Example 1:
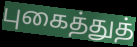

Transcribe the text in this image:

புகைத்துத்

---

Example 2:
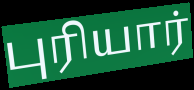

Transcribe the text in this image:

புரியார்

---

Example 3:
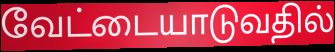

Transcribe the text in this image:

வேட்டையாடுவதில்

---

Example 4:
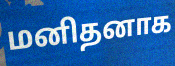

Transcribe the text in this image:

மனிதனாக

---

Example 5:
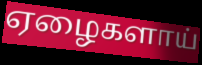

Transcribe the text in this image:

ஏழைகளாய்